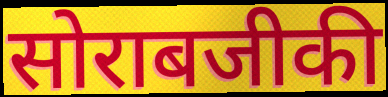
सोराबजीकी